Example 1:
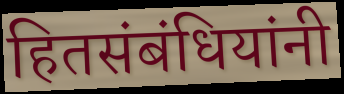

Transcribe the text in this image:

हितसंबंधियांनी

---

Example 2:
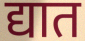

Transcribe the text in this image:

द्यात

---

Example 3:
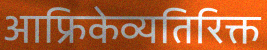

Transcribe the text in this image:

आफ्रिकेव्यतिरिक्त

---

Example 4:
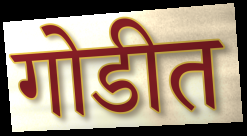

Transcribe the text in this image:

गोडीत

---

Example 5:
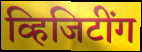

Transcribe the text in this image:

व्हिजिटींग